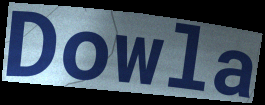
Dowla